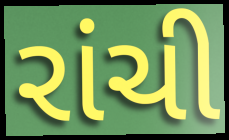
રાંચી